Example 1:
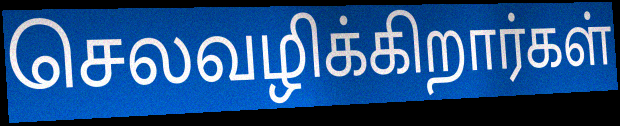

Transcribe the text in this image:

செலவழிக்கிறார்கள்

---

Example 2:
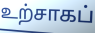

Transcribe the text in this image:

உற்சாகப்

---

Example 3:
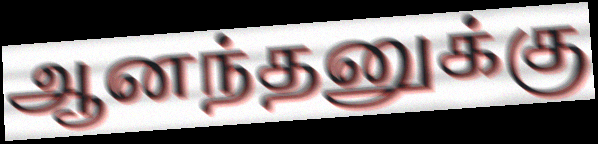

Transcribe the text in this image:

ஆனந்தனுக்கு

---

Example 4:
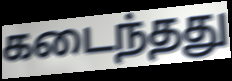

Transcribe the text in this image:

கடைந்தது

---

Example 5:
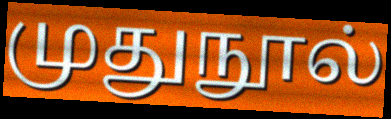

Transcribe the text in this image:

முதுநூல்